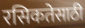
रसिकतेसाठी